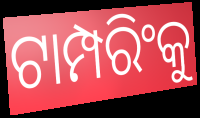
ଟାମ୍ପରିଂକୁ